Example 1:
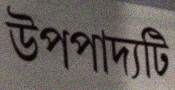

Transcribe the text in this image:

উপপাদ্যটি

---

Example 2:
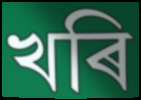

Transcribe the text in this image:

খৰি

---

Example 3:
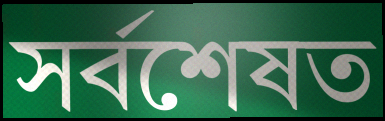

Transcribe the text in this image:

সৰ্বশেষত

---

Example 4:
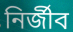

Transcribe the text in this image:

নিৰ্জীব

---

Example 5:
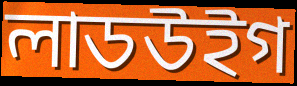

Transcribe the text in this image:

লাডউইগ